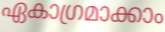
ഏകാഗ്രമാക്കാം